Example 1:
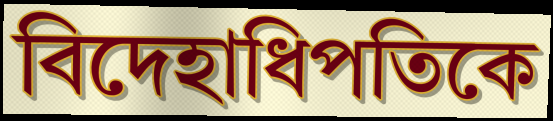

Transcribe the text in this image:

বিদেহাধিপতিকে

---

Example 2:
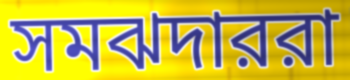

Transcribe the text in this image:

সমঝদাররা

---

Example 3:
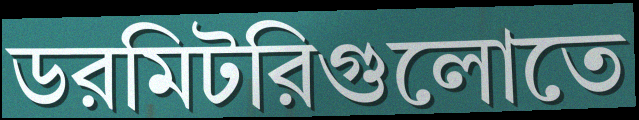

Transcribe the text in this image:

ডরমিটরিগুলোতে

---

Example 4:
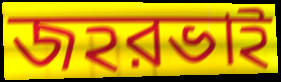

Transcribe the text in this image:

জহরভাই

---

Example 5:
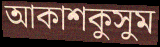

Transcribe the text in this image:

আকাশকুসুম